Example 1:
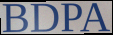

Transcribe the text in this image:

BDPA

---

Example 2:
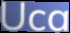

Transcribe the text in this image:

Uca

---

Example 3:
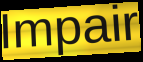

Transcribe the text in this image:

Impair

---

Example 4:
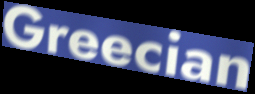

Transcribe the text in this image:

Greecian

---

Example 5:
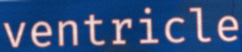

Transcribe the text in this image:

ventricle